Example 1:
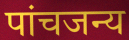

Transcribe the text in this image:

पांचजन्य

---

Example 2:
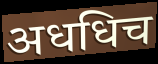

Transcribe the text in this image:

अधधिच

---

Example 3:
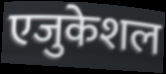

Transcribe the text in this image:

एजुकेशल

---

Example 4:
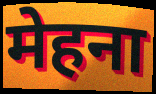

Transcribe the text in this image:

मेहना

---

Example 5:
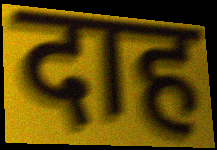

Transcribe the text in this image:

दाह